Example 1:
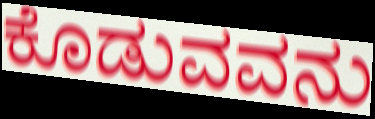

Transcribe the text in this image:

ಕೊಡುವವನು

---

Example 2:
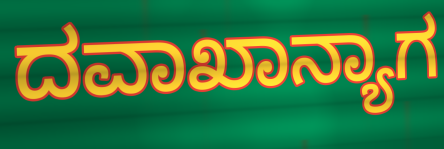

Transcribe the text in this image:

ದವಾಖಾನ್ಯಾಗ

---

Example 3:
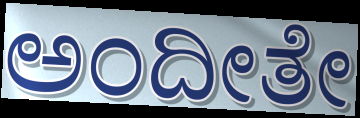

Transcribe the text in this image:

ಅಂದೀತೇ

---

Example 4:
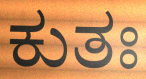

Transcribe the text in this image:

ಕುತಃ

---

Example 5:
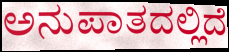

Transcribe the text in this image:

ಅನುಪಾತದಲ್ಲಿದೆ